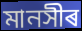
মানসীৰ